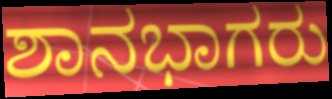
ಶಾನಭಾಗರು